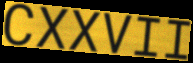
CXXVII